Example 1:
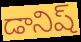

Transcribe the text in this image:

డానిష్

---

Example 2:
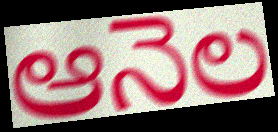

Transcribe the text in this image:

ఆనెల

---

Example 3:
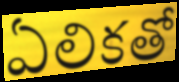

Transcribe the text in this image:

ఏలికతో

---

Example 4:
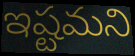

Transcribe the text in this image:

ఇష్టమని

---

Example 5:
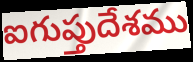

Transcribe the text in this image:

ఐగుప్తుదేశము